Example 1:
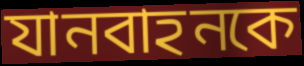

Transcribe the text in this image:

যানবাহনকে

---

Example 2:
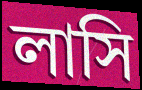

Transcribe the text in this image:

লাসি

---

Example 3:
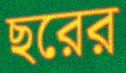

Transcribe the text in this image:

ছরের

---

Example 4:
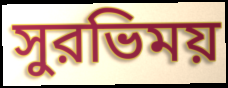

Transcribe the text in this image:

সুরভিময়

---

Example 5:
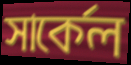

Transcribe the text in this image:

সার্কেল